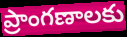
ప్రాంగణాలకు